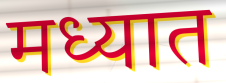
मध्यात